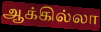
ஆக்கில்லா